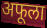
अफूला